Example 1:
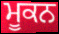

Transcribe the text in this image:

ਮੂਕਨ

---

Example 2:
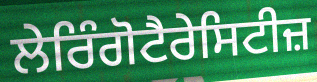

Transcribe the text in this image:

ਲੇਰਿੰਗੋਟੈਰੇਸਿਟੀਜ਼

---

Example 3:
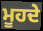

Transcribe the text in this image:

ਮੂਹਦੇ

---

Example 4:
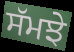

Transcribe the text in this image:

ਸੱਮਝੇ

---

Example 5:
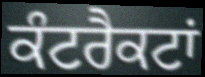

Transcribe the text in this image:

ਕੰਟਰੈਕਟਾਂ